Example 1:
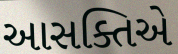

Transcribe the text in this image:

આસક્તિએ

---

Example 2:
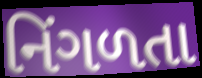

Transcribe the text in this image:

નિંગળતા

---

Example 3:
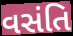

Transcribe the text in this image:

વસંતિ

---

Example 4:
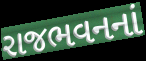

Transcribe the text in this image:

રાજભવનનાં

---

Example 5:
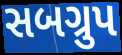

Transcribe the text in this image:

સબગ્રુપ